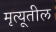
मृत्यूतील